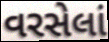
વરસેલાં